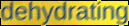
dehydrating